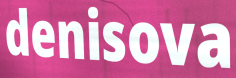
denisova